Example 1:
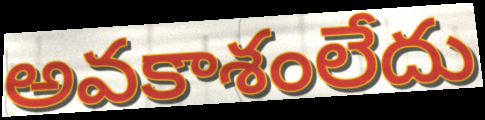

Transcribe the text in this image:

అవకాశంలేదు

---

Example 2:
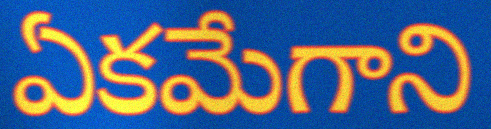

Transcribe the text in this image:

ఏకమేగాని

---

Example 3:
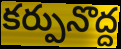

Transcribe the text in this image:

కర్పునొద్ద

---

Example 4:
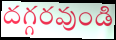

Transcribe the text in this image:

దగ్గరవుండి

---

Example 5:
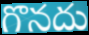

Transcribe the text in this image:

గొనదు